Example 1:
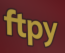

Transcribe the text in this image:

ftpy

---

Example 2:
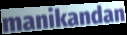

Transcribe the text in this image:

manikandan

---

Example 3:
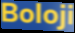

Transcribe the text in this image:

Boloji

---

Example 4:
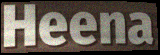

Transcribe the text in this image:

Heena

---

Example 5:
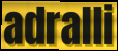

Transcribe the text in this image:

adralli